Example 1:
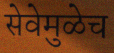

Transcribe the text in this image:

सेवेमुळेच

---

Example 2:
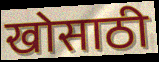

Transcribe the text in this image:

खोसाठी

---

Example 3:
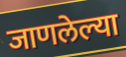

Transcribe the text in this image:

जाणलेल्या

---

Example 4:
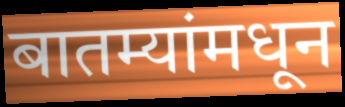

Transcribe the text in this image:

बातम्यांमधून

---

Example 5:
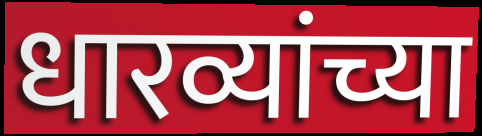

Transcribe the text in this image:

धारव्यांच्या